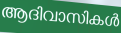
ആദിവാസികൾ